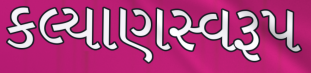
કલ્યાણસ્વરૂપ